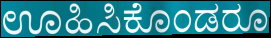
ಊಹಿಸಿಕೊಂಡರೂ